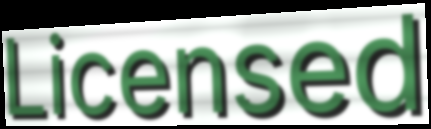
Licensed